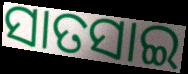
ସାତସାଇ